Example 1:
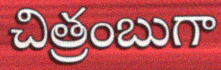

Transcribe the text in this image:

చిత్రంబుగా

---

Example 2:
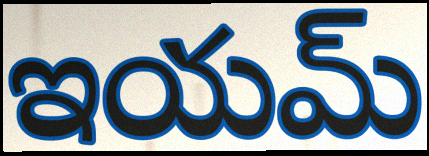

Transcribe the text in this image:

ఇయమ్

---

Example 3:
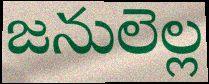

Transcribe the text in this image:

జనులెల్ల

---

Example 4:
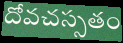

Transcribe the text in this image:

దోవచస్సతం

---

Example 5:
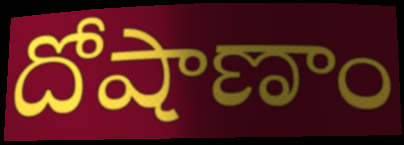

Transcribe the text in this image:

దోషాణాం